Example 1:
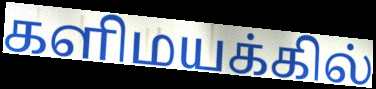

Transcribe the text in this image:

களிமயக்கில்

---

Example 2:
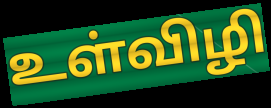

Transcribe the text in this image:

உள்விழி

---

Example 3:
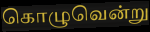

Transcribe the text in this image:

கொழுவென்று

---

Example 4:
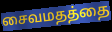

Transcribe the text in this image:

சைவமதத்தை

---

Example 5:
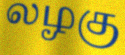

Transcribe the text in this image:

லழகு